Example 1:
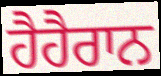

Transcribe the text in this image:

ਹੈਹੈਰਾਨ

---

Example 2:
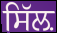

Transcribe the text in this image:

ਸਿੱਲ਼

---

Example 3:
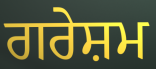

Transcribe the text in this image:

ਗਰੇਸ਼ਮ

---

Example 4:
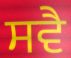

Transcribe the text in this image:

ਸਵੈ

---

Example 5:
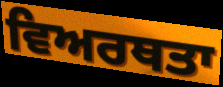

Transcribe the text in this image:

ਵਿਅਰਥਤਾ